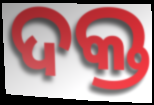
ଦକ୍ତ